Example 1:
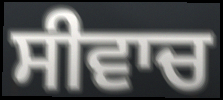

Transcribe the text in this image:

ਸੀਵਾਚ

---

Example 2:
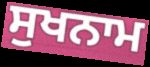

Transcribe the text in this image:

ਸੁਖਨਾਮ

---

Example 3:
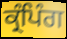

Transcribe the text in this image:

ਕ੍ਰੰਪਿੰਗ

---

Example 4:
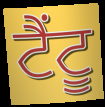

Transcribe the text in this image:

ਟੈਂਟੂ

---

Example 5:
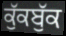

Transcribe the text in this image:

ਕੁੱਕਬੁੱਕ